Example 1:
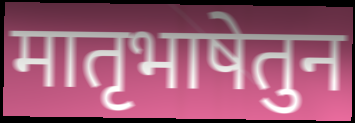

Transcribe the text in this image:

मातृभाषेतुन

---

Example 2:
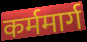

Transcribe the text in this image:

कर्ममार्ग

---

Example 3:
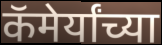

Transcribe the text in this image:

कॅमेर्यांच्या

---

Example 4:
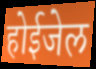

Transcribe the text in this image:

होईजेल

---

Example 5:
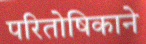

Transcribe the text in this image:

परितोषिकाने